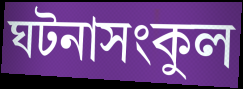
ঘটনাসংকুল